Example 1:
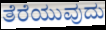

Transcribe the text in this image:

ತೆರೆಯುವುದು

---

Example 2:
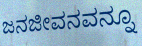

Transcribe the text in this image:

ಜನಜೀವನವನ್ನೂ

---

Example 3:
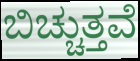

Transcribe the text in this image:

ಬಿಚ್ಚುತ್ತವೆ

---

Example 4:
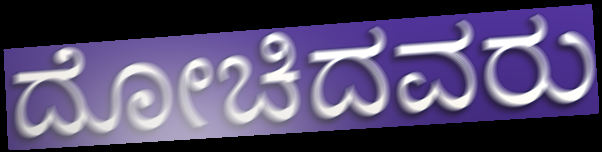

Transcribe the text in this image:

ದೋಚಿದವರು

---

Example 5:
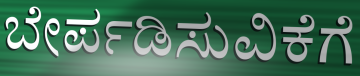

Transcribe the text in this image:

ಬೇರ್ಪಡಿಸುವಿಕೆಗೆ